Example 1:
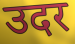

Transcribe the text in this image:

उदर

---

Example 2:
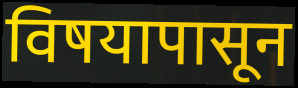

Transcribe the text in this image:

विषयापासून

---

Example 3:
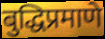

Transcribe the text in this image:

बुद्धिप्रमाणे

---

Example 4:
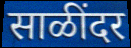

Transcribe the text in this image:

साळींदर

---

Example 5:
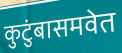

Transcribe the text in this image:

कुटुंबासमवेत